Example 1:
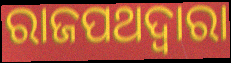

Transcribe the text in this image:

ରାଜପଥଦ୍ୱାରା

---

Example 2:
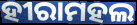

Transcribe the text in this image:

ହୀରାମହଲ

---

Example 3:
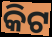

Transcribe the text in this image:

କିଟ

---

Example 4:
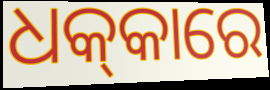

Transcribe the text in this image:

ଧକ୍‍କାରେ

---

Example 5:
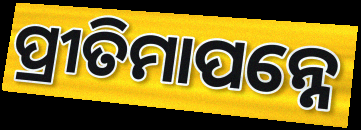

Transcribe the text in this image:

ପ୍ରୀତିମାପନ୍ନେ